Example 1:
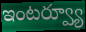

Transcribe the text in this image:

ఇంటర్వ్యూ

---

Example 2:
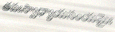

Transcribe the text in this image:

తపఃస్వాధ్యాయసంయమైః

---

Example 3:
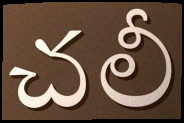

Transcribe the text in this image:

చలీ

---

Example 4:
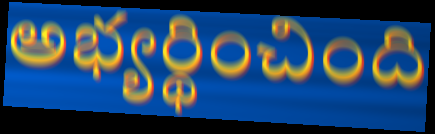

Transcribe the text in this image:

అభ్యర్థించింది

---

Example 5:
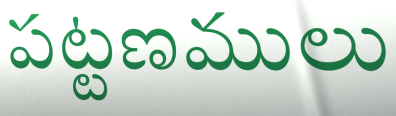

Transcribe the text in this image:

పట్టణములు